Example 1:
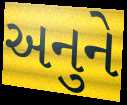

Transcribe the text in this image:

અનુને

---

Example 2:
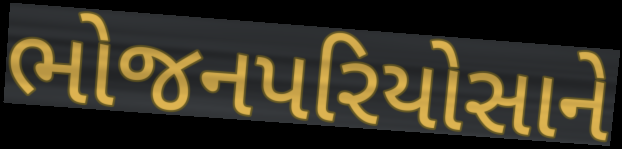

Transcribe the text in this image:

ભોજનપરિયોસાને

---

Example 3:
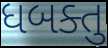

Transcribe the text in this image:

ધબક્તુ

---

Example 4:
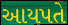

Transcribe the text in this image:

આયપતે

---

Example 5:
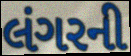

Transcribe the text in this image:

લંગરની